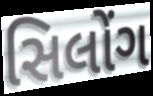
સિલોંગ